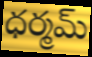
ధర్మమ్